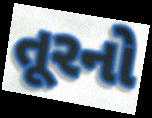
તૂરનો